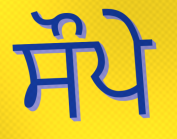
ਸੌਪੇ